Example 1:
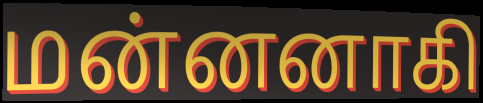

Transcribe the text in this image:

மன்னனாகி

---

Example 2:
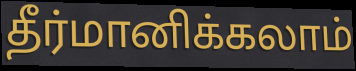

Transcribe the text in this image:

தீர்மானிக்கலாம்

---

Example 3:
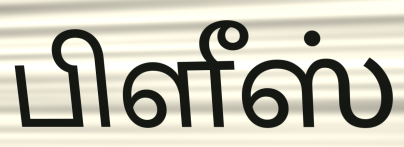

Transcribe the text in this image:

பிளீஸ்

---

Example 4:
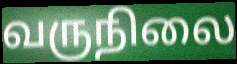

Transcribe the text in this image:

வருநிலை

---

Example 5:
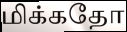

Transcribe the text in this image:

மிக்கதோ